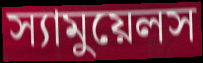
স্যামুয়েলস